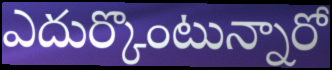
ఎదుర్కొంటున్నారో